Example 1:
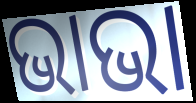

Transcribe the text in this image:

ଭାଭା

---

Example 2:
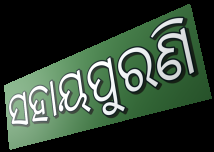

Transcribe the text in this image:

ସହାୟପୁରଣି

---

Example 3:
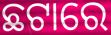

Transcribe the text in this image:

ଛଟାରେ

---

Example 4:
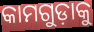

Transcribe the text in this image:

କାମଗୁଡ଼ାକୁ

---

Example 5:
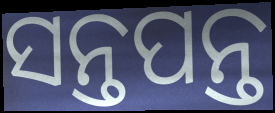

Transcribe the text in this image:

ସନ୍ତପନ୍ତ